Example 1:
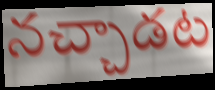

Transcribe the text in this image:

నచ్చాడట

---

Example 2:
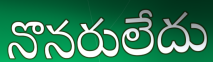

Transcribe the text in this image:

నొనరులేదు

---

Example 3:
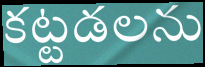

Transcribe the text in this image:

కట్టడలను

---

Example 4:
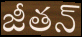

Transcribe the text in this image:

జీతన్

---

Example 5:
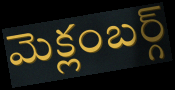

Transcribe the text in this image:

మెక్లంబర్గ్